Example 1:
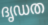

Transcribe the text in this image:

ദൃഡത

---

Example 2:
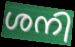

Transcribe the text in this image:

ശനി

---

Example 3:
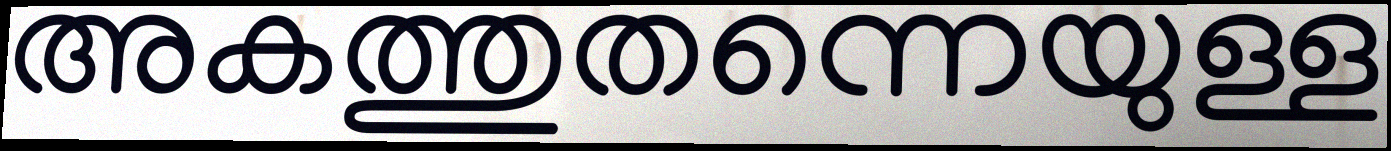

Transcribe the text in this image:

അകത്തുതന്നെയുള്ള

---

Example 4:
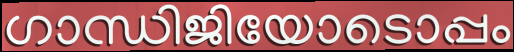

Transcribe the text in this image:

ഗാന്ധിജിയോടൊപ്പം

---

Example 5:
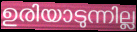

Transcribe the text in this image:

ഉരിയാടുന്നില്ല